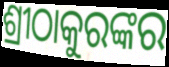
ଶ୍ରୀଠାକୁରଙ୍କର